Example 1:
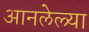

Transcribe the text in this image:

आनलेल्या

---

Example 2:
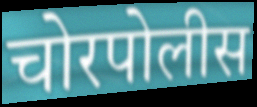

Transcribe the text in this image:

चोरपोलीस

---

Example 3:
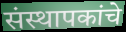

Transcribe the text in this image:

संस्थापकांचे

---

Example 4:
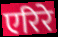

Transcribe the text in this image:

एरिरे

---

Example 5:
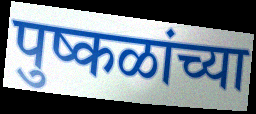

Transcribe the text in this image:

पुष्कळांच्या